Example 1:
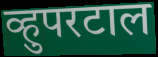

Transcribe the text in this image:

व्हुपरटाल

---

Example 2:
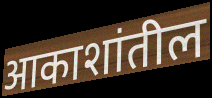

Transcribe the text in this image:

आकाशांतील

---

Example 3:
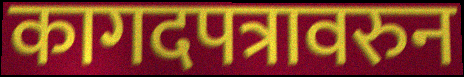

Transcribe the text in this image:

कागदपत्रावरुन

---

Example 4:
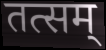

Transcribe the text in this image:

तत्सम्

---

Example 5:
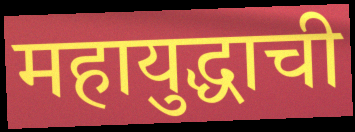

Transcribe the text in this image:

महायुद्धाची